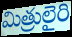
మిత్రులైరి